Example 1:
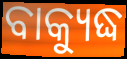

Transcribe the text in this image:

ବାକ୍ଯୁଦ୍ଧ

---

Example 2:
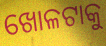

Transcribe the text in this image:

ଖୋଳଟାକୁ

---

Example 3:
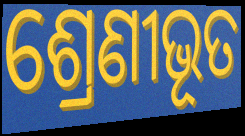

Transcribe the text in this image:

ଶ୍ରେଣୀଭୂତ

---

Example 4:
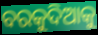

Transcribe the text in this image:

ବରକୁଦିଆକୁ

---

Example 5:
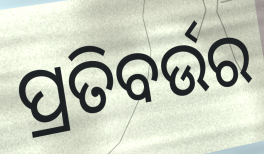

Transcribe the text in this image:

ପ୍ରତିବର୍ଉର